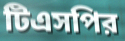
টিএসপির